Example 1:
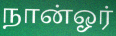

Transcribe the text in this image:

நான்ஓர்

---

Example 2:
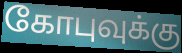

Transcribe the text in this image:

கோபுவுக்கு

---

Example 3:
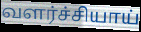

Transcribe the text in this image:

வளர்ச்சியாய்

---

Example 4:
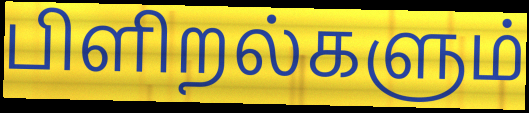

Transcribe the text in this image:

பிளிறல்களும்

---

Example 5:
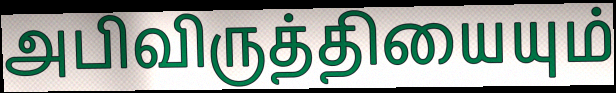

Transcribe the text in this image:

அபிவிருத்தியையும்